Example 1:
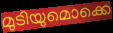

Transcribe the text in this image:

മുടിയുമൊക്കെ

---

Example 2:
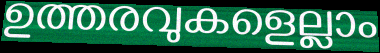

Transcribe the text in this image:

ഉത്തരവുകളെല്ലാം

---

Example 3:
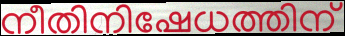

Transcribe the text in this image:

നീതിനിഷേധത്തിന്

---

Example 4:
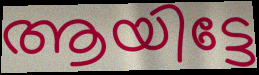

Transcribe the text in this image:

ആയിട്ടേ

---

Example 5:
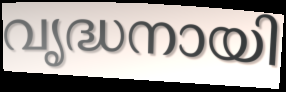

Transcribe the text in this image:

വൃദ്ധനായി